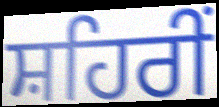
ਸ਼ਹਿਰੀਂ